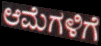
ಆಮೆಗಳಿಗೆ